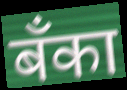
बॅंका